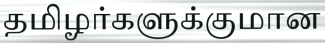
தமிழர்களுக்குமான